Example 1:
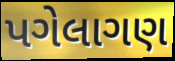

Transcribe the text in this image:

પગેલાગણ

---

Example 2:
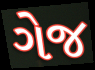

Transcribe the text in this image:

ગેજ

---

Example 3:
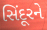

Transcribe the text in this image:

સિંદૂરને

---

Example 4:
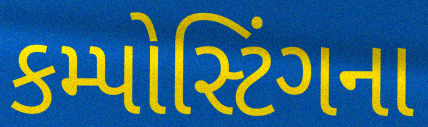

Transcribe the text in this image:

કમ્પોસ્ટિંગના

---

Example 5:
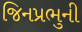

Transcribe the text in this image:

જિનપ્રભુની